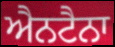
ਐਨਟੈਨਾ